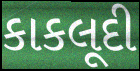
કાકલૂદી